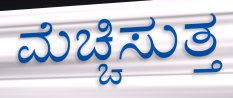
ಮೆಚ್ಚಿಸುತ್ತ